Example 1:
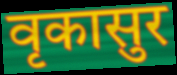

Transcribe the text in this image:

वृकासुर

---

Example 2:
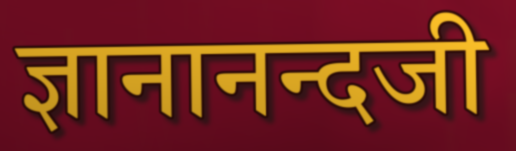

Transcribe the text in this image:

ज्ञानानन्दजी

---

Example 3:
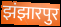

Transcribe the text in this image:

झंझारपुर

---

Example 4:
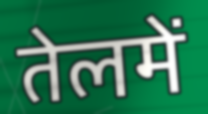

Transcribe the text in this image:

तेलमें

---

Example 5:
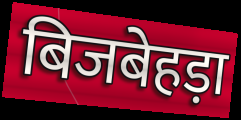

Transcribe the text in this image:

बिजबेहड़ा